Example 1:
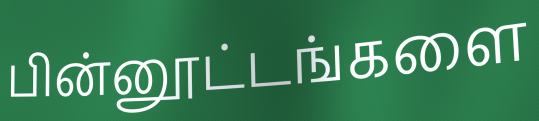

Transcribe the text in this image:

பின்னூட்டங்களை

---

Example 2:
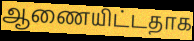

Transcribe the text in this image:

ஆணையிட்டதாக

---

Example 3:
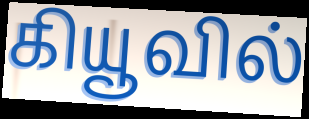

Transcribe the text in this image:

கியூவில்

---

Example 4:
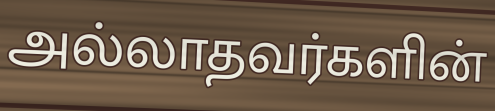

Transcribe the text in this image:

அல்லாதவர்களின்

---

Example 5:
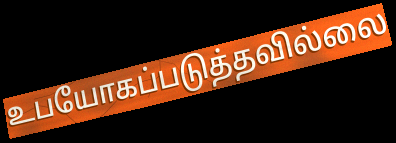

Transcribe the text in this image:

உபயோகப்படுத்தவில்லை